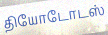
தியோடோடஸ்